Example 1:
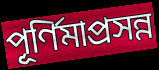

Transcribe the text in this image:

পূর্ণিমাপ্রসন্ন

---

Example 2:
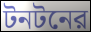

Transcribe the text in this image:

টনটনের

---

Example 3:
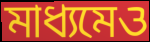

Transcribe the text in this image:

মাধ্যমেও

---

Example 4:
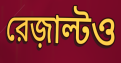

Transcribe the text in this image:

রেজ়াল্টও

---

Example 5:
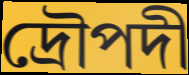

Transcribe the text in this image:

দ্রৌপদী